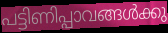
പട്ടിണിപ്പാവങ്ങൾക്കു